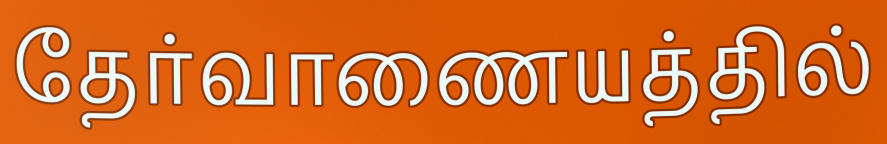
தேர்வாணையத்தில்